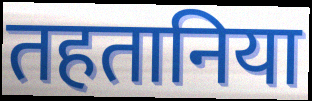
तहतानिया